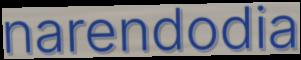
narendodia